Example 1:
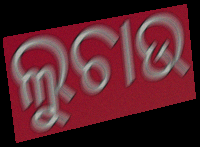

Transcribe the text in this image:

ଲୁଚାଉ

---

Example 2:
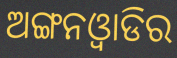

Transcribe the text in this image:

ଅଙ୍ଗନଓ୍ବାଡିର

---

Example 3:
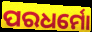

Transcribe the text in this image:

ପରଧର୍ମୋ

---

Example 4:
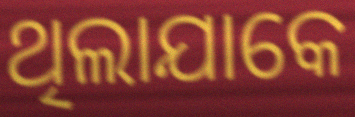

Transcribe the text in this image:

ଥିଲାଯାକେ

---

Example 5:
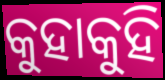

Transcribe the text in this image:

କୁହାକୁହି